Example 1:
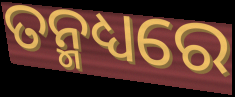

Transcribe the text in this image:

ତନ୍ମଧ୍ୟରେ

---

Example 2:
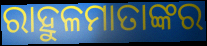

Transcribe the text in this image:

ରାହୁଳମାତାଙ୍କର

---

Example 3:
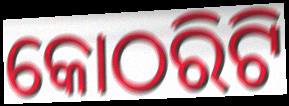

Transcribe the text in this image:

କୋଠରିଟି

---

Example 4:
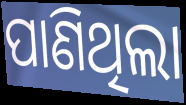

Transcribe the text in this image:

ପାଣିଥିଲା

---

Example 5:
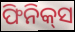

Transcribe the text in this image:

ଫିନିକ୍‍ସ